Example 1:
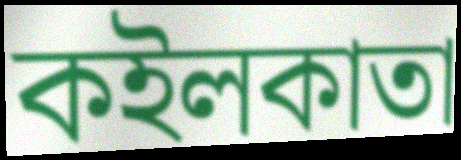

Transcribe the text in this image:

কইলকাতা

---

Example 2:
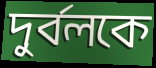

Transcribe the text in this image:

দুর্বলকে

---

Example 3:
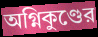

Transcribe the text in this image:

অগ্নিকুণ্ডের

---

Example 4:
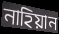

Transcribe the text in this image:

নাহিয়ান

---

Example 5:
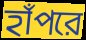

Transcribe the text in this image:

হাঁপরে